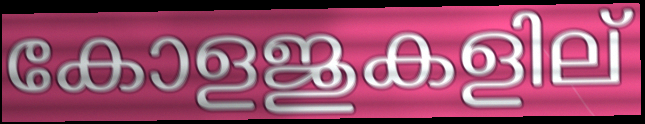
കോളജുകളില്